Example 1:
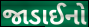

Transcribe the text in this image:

જાડાઈનો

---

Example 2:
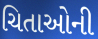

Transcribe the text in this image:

ચિતાઓની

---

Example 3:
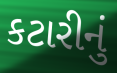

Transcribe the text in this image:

કટારીનું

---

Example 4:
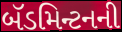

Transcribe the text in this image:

બૅડમિન્ટનની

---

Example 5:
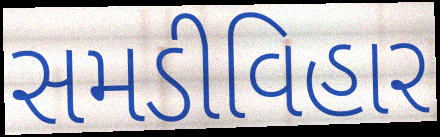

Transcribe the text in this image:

સમડીવિહાર